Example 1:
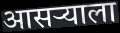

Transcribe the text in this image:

आसऱ्याला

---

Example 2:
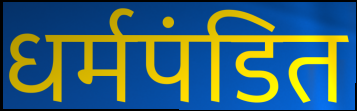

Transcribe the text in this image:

धर्मपंडित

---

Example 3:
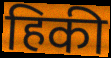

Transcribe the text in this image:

हिकी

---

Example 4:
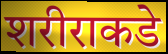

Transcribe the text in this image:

शरीराकडे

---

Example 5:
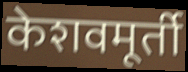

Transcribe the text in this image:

केशवमूर्ती